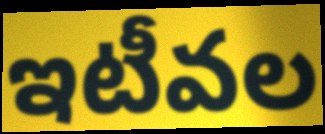
ఇటీవల